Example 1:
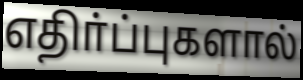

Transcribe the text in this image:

எதிர்ப்புகளால்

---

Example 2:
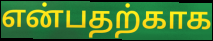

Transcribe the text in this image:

என்பதற்காக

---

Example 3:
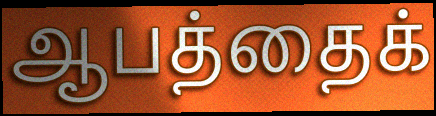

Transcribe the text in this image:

ஆபத்தைக்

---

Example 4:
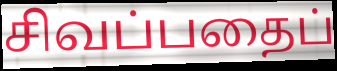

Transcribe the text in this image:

சிவப்பதைப்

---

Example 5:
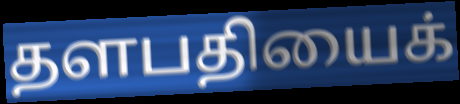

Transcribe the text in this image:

தளபதியைக்